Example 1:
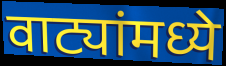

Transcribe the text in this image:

वाट्यांमध्ये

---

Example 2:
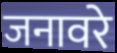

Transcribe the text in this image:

जनावरे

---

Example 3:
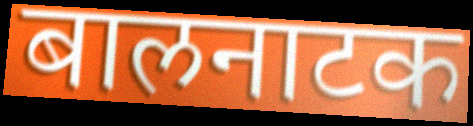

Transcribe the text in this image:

बालनाटक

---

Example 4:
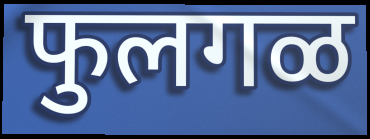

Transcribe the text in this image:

फुलगळ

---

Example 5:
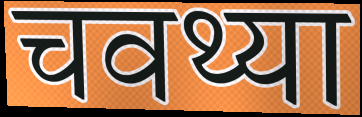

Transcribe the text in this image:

चवथ्या